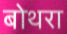
बोथरा